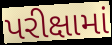
પરીક્ષામાં